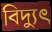
বিদ্যুৎ